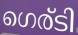
ഗെര്ടി